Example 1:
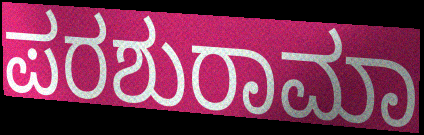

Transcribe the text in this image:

ಪರಶುರಾಮಾ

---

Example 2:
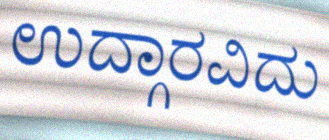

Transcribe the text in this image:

ಉದ್ಗಾರವಿದು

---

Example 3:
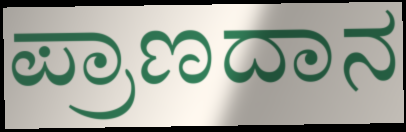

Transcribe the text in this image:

ಪ್ರಾಣದಾನ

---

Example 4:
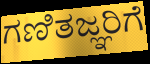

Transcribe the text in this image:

ಗಣಿತಜ್ಞರಿಗೆ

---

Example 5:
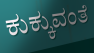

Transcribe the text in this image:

ಕುಕ್ಕುವಂತೆ